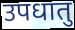
उपधातु